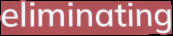
eliminating